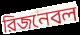
রিজনেবল